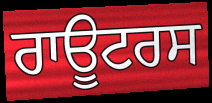
ਰਾਊਟਰਸ